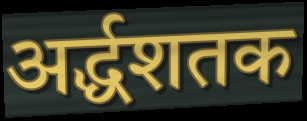
अर्द्धशतक